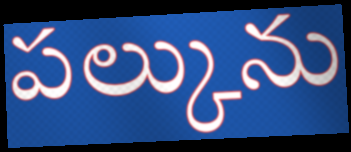
పల్కును